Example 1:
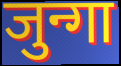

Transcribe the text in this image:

जुन्गा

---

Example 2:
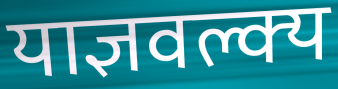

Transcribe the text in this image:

याज्ञवल्क्य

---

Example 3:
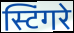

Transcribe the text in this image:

स्टिंगरे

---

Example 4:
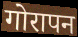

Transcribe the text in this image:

गोरापन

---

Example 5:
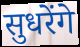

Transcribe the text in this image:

सुधरेंगे